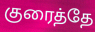
குரைத்தே